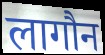
लागौन